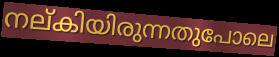
നല്കിയിരുന്നതുപോലെ